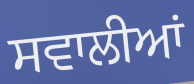
ਸਵਾਲੀਆਂ